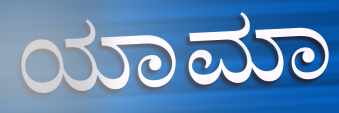
ಯಾಮಾ